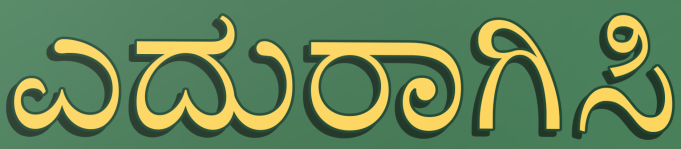
ಎದುರಾಗಿಸಿ